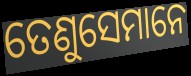
ତେଣୁସେମାନେ